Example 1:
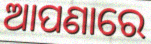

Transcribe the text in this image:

ଆପଣାରେ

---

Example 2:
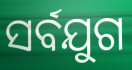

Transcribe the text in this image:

ସର୍ବଯୁଗ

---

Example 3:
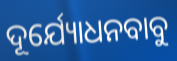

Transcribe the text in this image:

ଦୂର୍ଯ୍ୟୋଧନବାବୁ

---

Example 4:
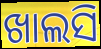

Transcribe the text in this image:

ଖାଲସି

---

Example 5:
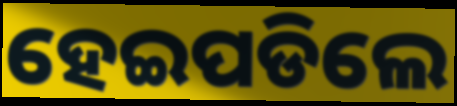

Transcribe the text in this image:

ହେଇପଡିଲେ